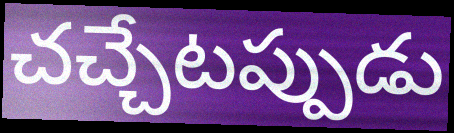
చచ్చేటప్పుడు